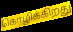
கொழிக்கிறது